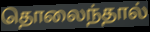
தொலைந்தால்